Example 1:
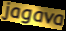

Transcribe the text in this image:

jagava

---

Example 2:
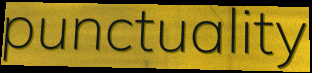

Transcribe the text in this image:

punctuality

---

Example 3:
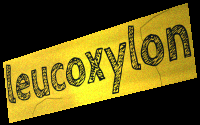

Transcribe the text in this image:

leucoxylon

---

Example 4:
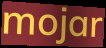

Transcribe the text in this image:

mojar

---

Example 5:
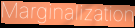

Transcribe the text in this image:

Marginalization